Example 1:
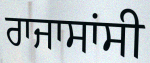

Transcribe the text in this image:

ਰਾਜਾਸਾਂਸੀ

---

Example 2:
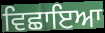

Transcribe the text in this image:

ਵਿਛਾਇਆ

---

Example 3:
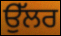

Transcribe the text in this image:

ਉੱਲਰ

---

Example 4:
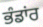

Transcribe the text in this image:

ਭੰਡਾਂਰ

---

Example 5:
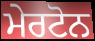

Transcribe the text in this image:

ਮੇਰਟੋਨ